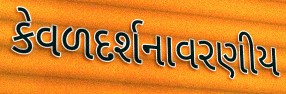
કેવળદર્શનાવરણીય